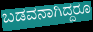
ಬಡವನಾಗಿದ್ದರೂ